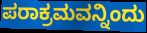
ಪರಾಕ್ರಮವನ್ನಿಂದು